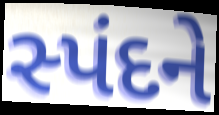
સ્પંદને